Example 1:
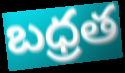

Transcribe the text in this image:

బధ్రత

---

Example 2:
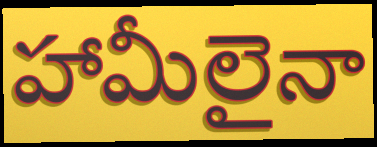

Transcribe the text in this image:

హామీలైనా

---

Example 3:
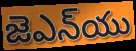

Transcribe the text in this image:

జెఎన్‌యు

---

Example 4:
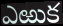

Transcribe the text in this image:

ఎఱుక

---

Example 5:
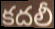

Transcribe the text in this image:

కదలీ